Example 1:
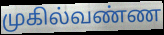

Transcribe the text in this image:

முகில்வண்ண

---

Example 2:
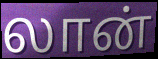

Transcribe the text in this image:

லான்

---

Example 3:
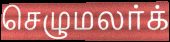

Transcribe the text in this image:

செழுமலர்க்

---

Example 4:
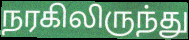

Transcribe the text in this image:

நரகிலிருந்து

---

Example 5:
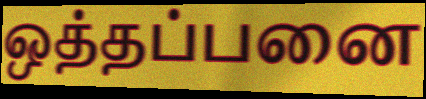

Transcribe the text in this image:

ஒத்தப்பனை